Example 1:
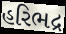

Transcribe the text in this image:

હરિભદ્ર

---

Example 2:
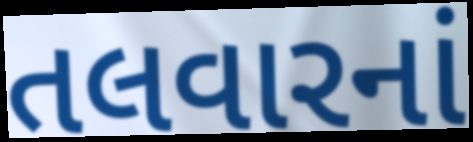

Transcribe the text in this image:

તલવારનાં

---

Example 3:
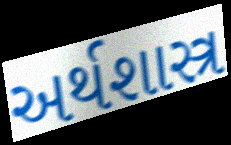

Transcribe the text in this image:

અર્થશાસ્ત્ર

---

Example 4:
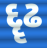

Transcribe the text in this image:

દૄઢ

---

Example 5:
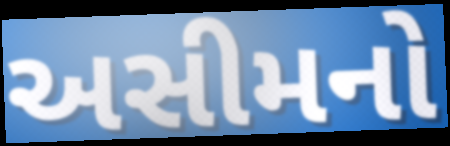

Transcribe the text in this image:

અસીમનો